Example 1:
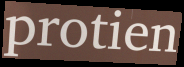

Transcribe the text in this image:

protien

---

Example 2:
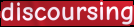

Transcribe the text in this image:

discoursing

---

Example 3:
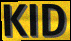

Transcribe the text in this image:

KID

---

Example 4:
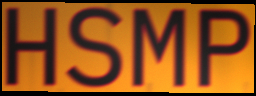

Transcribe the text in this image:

HSMP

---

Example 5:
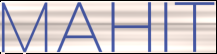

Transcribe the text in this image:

MAHIT